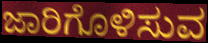
ಜಾರಿಗೊಳಿಸುವ